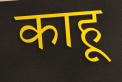
काहू